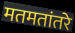
मतमतांतरे